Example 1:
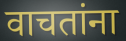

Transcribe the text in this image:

वाचतांना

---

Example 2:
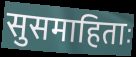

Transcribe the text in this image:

सुसमाहिताः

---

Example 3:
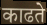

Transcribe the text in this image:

काढते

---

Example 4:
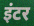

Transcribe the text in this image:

इंटर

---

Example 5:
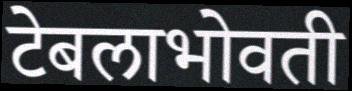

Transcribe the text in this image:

टेबलाभोवती